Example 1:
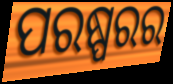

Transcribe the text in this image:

ପରଷ୍ପରର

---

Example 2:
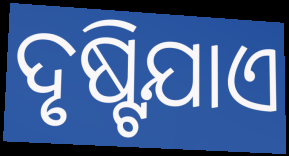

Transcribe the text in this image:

ଦୃଷ୍ଟିଯାଏ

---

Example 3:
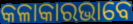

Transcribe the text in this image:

କଳାକାରଭାବେ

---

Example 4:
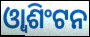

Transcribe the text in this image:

ଓ୍ୱାଶିଂଟନ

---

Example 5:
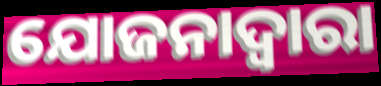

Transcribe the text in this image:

ଯୋଜନାଦ୍ୱାରା